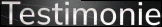
Testimonie